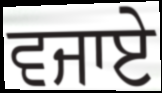
ਵਜਾਏ